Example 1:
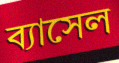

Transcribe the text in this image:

ব্যাসেল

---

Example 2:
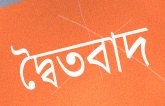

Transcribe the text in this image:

দ্বৈতবাদ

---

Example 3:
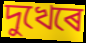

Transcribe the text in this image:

দুখেৰে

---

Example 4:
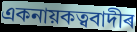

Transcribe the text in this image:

একনায়কত্ববাদীৰ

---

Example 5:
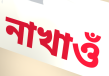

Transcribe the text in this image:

নাখাওঁ